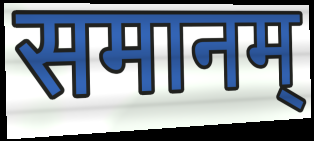
समानम्